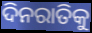
ଦିନରାତିକୁ